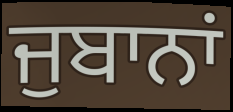
ਜੁਬਾਨਾਂ